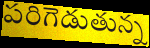
పరిగెడుతున్న